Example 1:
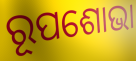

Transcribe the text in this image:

ରୂପଶୋଭା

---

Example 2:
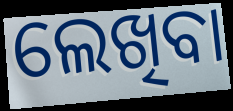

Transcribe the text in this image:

ଲେଖିବା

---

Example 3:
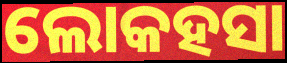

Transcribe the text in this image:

ଲୋକହସା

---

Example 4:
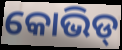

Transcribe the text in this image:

କୋଭିଡ୍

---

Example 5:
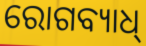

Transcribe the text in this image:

ରୋଗବ୍ୟାଧ୍